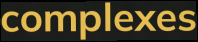
complexes